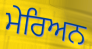
ਮੇਰਿਅਨ